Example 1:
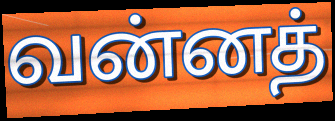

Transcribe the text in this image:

வன்னத்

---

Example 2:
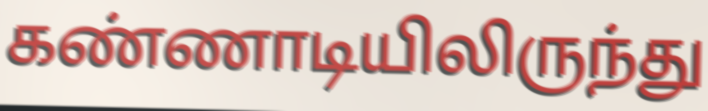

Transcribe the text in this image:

கண்ணாடியிலிருந்து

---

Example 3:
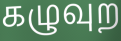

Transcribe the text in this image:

கழுவுற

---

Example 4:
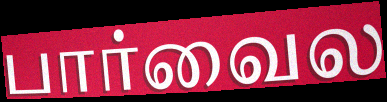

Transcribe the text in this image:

பார்வைல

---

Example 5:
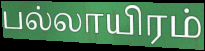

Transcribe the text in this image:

பல்லாயிரம்